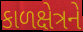
કાળક્ષેત્રને